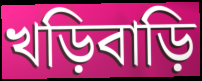
খড়িবাড়ি